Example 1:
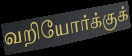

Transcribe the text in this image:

வறியோர்க்குக்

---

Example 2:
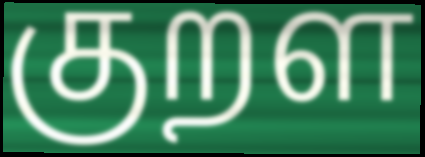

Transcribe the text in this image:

குறள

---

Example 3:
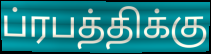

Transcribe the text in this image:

ப்ரபத்திக்கு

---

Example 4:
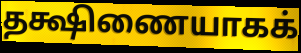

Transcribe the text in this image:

தக்ஷிணையாகக்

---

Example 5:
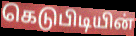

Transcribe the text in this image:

கெடுபிடியின்